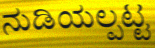
ನುಡಿಯಲ್ಪಟ್ಟ